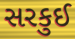
સરકુઈ